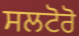
ਸਲਟੋਰੋ